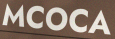
MCOCA